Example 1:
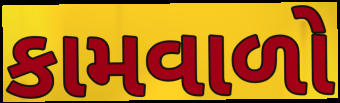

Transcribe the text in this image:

કામવાળો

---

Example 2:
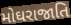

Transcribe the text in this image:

મોઘરાજાતિ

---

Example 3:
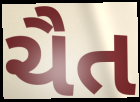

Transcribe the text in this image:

ચૈત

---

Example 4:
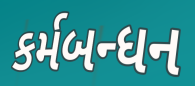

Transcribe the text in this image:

કર્મબન્ધન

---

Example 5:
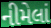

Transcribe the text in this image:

નીમેલાં